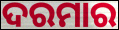
ଦରମାର